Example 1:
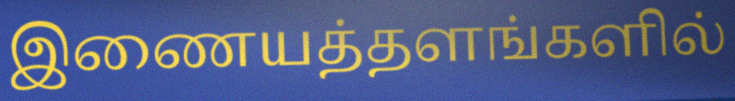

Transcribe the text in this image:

இணையத்தளங்களில்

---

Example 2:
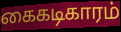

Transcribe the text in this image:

கைகடிகாரம்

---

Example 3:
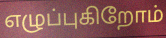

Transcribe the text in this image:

எழுப்புகிறோம்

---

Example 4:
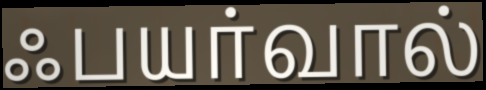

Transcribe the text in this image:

ஃபயர்வால்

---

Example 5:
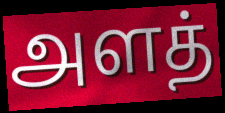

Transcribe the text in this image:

அளத்